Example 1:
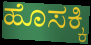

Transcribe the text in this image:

ಹೊಸಕ್ಕಿ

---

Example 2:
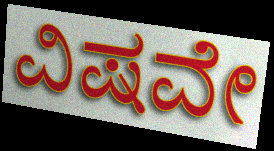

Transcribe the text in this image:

ವಿಷವೇ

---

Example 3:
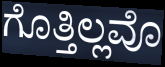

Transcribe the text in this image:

ಗೊತ್ತಿಲ್ಲವೊ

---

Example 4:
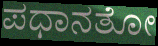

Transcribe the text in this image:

ಪಧಾನತೋ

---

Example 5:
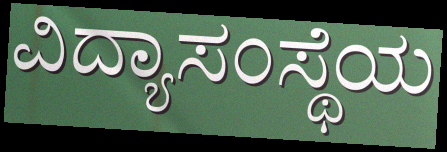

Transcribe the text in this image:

ವಿದ್ಯಾಸಂಸ್ಥೆಯ